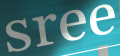
sree